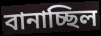
বানাচ্ছিল